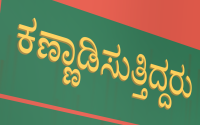
ಕಣ್ಣಾಡಿಸುತ್ತಿದ್ದರು